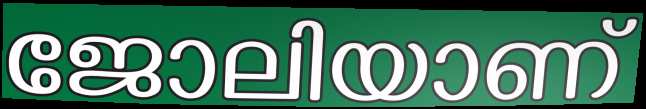
ജോലിയാണ്